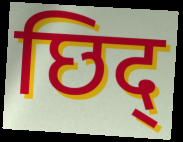
छिद्